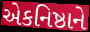
એકનિષ્ઠાને